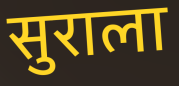
सुराला